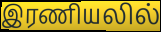
இரணியலில்